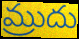
మ్రుదు